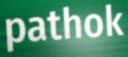
pathok